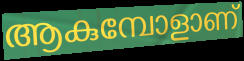
ആകുമ്പോളാണ്